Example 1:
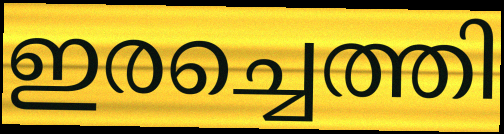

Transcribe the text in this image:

ഇരച്ചെത്തി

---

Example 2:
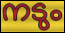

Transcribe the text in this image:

നടും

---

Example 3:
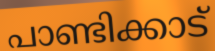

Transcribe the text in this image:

പാണ്ടിക്കാട്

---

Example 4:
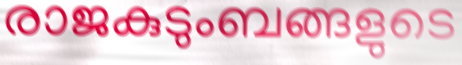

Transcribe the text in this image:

രാജകുടുംബങ്ങളുടെ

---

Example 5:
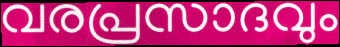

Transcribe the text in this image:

വരപ്രസാദവും